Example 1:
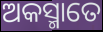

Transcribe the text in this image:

ଅକସ୍ମାତେ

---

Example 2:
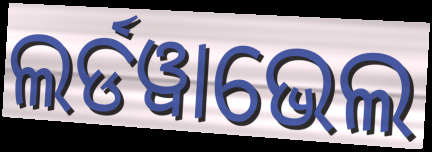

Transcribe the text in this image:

ଲର୍ଡୱାଭେଲ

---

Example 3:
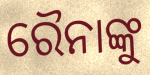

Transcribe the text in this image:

ରୈନାଙ୍କୁ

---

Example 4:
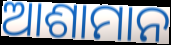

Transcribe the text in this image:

ଆଶାମାନ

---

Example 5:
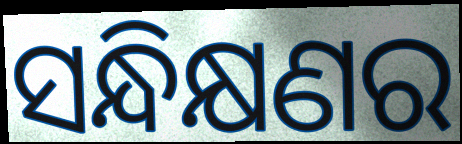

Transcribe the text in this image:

ସନ୍ଧିକ୍ଷଣର